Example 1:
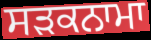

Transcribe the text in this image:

ਸਡ਼ਕਨਾਮਾ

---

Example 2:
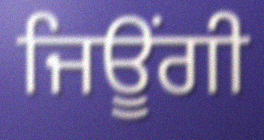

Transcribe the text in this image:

ਜਿਊਂਗੀ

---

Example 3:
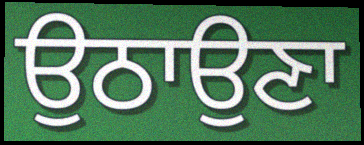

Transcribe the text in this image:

ਉਠਾਉਣਾ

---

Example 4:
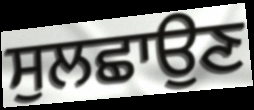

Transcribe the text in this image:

ਸੁਲਛਾਉਣ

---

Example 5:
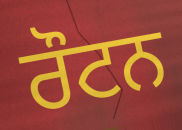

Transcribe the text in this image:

ਰੌਟਨ